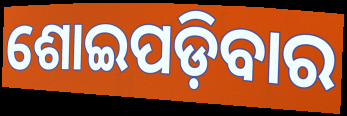
ଶୋଇପଡ଼ିବାର